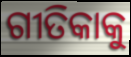
ଗୀତିକାକୁ